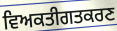
ਵਿਅਕਤੀਗਤਕਰਣ